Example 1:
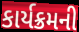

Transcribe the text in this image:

કાર્યક્રમની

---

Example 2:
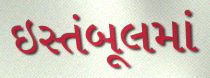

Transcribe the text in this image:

ઇસ્તંબૂલમાં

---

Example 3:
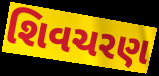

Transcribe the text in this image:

શિવચરણ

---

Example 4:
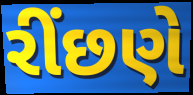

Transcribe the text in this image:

રીંછણે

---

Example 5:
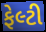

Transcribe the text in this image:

ફેલ્ટી